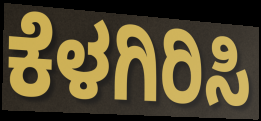
ಕೆಳಗಿರಿಸಿ